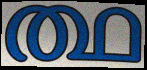
ത്ഥ